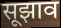
सूझाव